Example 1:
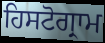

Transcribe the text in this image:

ਹਿਸਟੋਗ੍ਰਾਮ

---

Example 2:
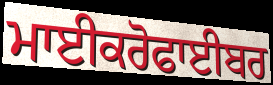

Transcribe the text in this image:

ਮਾਈਕਰੋਫਾਈਬਰ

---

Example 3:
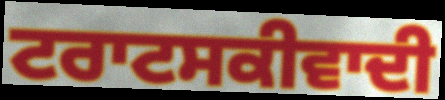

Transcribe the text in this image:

ਟਰਾਟਸਕੀਵਾਦੀ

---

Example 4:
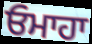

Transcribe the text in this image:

ਓਮਾਹਾ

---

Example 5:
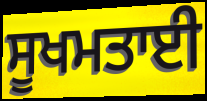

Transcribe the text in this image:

ਸੂਖਮਤਾਈ